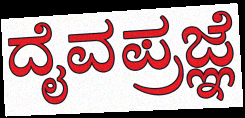
ದೈವಪ್ರಜ್ಞೆ